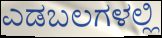
ಎಡಬಲಗಳಲ್ಲಿ